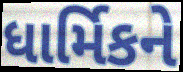
ધાર્મિકને